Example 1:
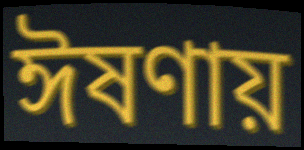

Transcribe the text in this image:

ঈষণায়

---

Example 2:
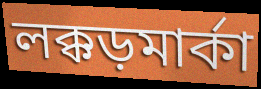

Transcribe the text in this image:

লক্কড়মার্কা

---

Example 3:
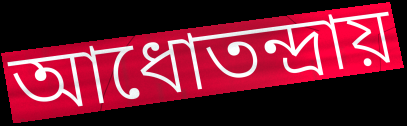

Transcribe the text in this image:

আধোতন্দ্রায়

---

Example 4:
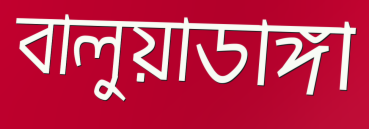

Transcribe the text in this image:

বালুয়াডাঙ্গা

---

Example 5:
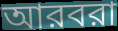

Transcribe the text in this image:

আরবরা